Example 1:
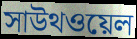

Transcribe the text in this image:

সাউথওয়েল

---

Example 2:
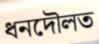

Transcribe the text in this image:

ধনদৌলত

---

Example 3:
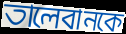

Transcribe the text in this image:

তালেবানকে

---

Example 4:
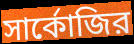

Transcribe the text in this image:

সার্কোজির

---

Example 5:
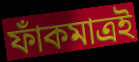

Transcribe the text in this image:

ফাঁকমাত্রই